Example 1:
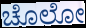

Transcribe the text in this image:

ಚೊಲೋ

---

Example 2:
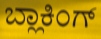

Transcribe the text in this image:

ಬ್ಲಾಕಿಂಗ್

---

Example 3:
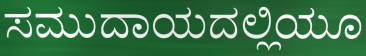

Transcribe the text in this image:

ಸಮುದಾಯದಲ್ಲಿಯೂ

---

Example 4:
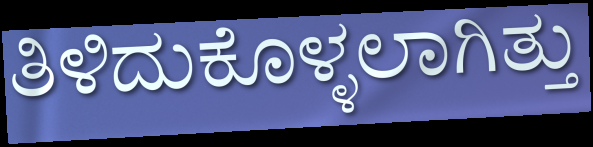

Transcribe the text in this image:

ತಿಳಿದುಕೊಳ್ಳಲಾಗಿತ್ತು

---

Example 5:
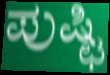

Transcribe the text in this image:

ಪುಷ್ಟಿ